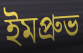
ইমপ্রুভ